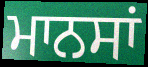
ਮਾਨਸਾਂ